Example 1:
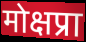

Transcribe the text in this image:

मोक्षप्रा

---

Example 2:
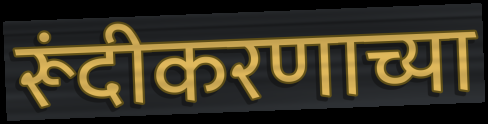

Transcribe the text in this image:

रूंदीकरणाच्या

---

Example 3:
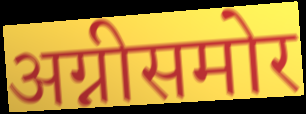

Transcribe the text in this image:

अग्नीसमोर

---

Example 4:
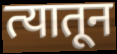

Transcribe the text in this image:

त्‍यातून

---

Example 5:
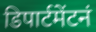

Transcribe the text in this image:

डिपार्टमेंटनं